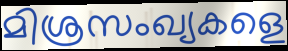
മിശ്രസംഖ്യകളെ